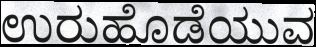
ಉರುಹೊಡೆಯುವ